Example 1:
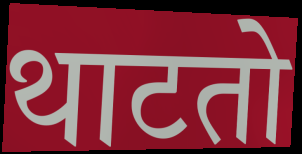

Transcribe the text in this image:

थाटतो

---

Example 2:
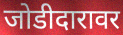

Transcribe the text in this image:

जोडीदारावर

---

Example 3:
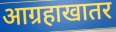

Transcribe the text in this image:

आग्रहाखातर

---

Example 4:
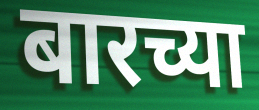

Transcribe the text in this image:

बारच्या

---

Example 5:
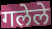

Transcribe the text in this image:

गलेले